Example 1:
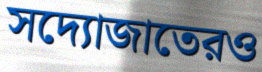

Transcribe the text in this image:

সদ্যোজাতেরও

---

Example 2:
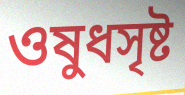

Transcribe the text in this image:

ওষুধসৃষ্ট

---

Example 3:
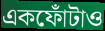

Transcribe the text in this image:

একফোঁটাও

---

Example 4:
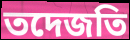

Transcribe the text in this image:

তদেজতি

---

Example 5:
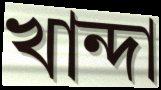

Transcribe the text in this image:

খান্দা